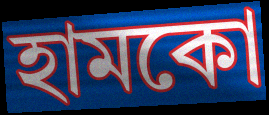
হামকো